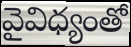
వైవిధ్యంతో